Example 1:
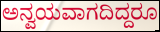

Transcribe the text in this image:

ಅನ್ವಯವಾಗದಿದ್ದರೂ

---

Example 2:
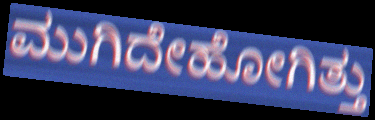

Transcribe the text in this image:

ಮುಗಿದೇಹೋಗಿತ್ತು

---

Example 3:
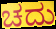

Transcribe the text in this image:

ಚದು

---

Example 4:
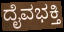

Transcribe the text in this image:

ದೈವಭಕ್ತಿ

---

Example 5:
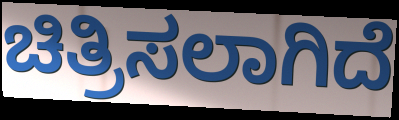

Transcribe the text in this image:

ಚಿತ್ರಿಸಲಾಗಿದೆ